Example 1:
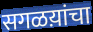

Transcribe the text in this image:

सगळय़ांचा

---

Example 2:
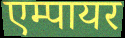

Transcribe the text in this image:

एम्पायर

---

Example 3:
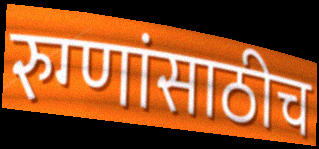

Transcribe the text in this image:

रुग्णांसाठीच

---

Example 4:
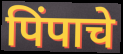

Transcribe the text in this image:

पिंपाचे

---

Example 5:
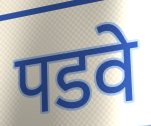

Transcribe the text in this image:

पडवे